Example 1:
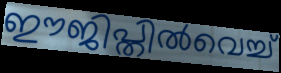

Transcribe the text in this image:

ഈജിപ്തിൽവെച്ച്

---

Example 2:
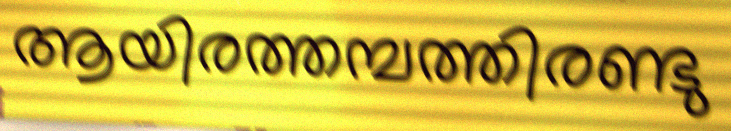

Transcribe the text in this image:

ആയിരത്തമ്പത്തിരണ്ടു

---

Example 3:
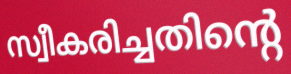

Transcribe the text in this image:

സ്വീകരിച്ചതിന്റെ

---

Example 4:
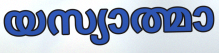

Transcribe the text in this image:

യസ്യാത്മാ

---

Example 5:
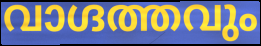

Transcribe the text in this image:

വാഗ്ദത്തവും